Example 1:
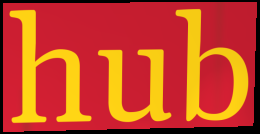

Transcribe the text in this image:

hub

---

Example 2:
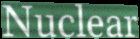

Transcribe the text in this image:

Nuclear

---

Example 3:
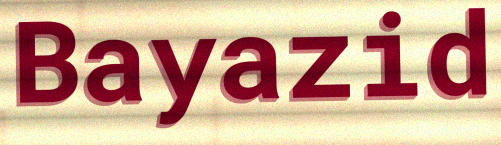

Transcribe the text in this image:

Bayazid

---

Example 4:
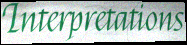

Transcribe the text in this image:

Interpretations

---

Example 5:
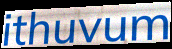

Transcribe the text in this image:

ithuvum